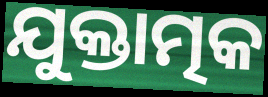
ଯୁକ୍ତାତ୍ମକ